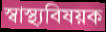
স্বাস্থ্যবিষয়ক